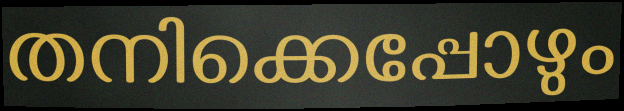
തനിക്കെപ്പോഴും